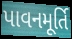
પાવનમૂર્તિ